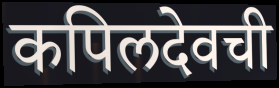
कपिलदेवची